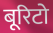
बूरिटो